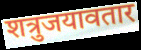
शत्रुजयावतार